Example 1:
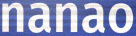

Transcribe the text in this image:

nanao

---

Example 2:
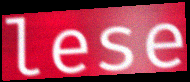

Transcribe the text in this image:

lese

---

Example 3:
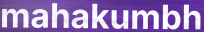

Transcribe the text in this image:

mahakumbh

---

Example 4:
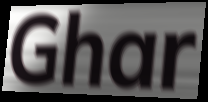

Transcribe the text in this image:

Ghar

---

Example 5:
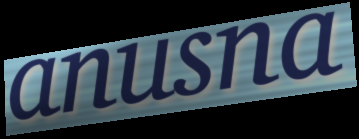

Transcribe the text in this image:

anusna